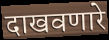
दाखवणारे